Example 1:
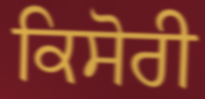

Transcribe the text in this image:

ਕਿਸੋਰੀ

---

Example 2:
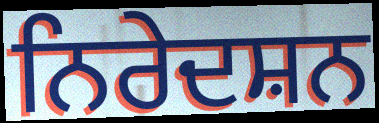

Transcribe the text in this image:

ਨਿਰੇਦਸ਼ਨ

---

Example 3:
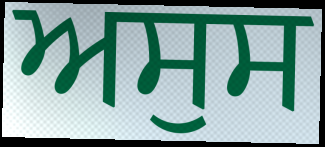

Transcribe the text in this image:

ਅਸੁਸ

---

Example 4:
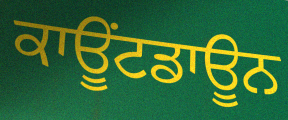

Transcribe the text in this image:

ਕਾਊਂਟਡਾਊਨ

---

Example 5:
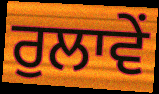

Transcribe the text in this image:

ਰੁਲਾਵੇਂ